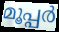
മൂപ്പർ